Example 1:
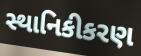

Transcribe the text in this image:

સ્થાનિકીકરણ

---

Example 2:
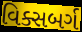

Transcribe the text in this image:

વિક્સબર્ગ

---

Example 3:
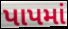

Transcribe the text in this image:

પાપમાં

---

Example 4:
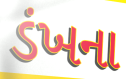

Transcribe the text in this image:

ડંખના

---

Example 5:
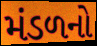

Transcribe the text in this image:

મંડળનો